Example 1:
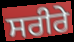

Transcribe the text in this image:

ਸਰੀਰੇ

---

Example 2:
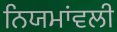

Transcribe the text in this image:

ਨਿਯਮਾਂਵਲੀ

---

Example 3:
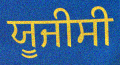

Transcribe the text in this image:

ਯੂਜੀਸੀ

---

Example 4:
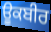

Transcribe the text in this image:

ਊਕਬੀਰ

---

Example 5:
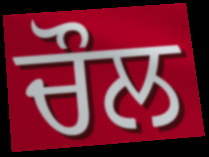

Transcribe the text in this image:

ਚੌਲ